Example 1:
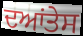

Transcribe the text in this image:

ਦਆਂਤੇਸ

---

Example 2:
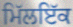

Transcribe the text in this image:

ਮਿੱਲਇੱਕ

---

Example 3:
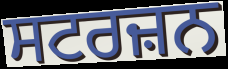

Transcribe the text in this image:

ਸਟਰਜ਼ਨ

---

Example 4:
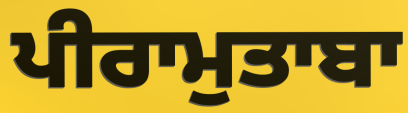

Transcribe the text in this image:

ਪੀਰਾਮੁਤਾਬਾ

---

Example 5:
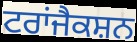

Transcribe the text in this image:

ਟਰਾਂਜੈਕਸ਼ਨ